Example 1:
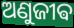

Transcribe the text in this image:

ଅଣୁଜୀଵ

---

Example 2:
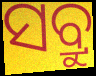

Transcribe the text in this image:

ସବ୍ରୁ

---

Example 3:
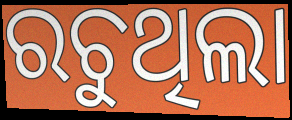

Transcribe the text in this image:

ରଚୁଥିଲା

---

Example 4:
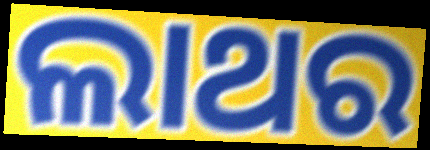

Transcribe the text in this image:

ଲାଥର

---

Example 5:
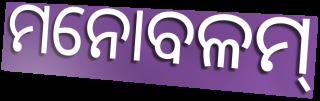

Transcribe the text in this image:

ମନୋବଳମ୍